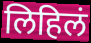
लिहिलं